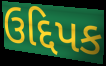
ઉદ્દિપક